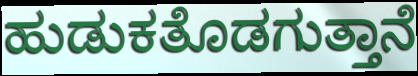
ಹುಡುಕತೊಡಗುತ್ತಾನೆ